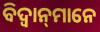
ବିଦ୍ୱାନ୍‌ମାନେ